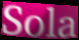
Sola